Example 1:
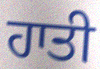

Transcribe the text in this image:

ਹਾਤੀ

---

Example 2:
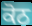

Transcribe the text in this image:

ਕੋਠ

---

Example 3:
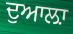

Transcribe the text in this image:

ਦੁਆਲ਼ਾ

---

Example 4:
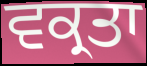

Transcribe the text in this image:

ਵਕ੍ਰਤਾ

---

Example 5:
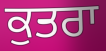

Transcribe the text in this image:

ਕੁਤਰਾ